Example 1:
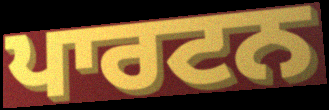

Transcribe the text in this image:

ਪਾਰਟਨ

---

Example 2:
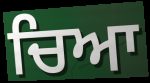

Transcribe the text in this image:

ਚਿਆ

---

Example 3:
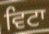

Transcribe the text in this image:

ਵਿਟਾ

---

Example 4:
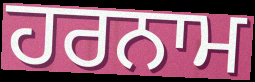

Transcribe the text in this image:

ਹਰਨਾਮ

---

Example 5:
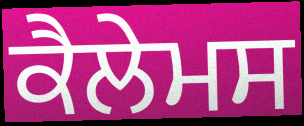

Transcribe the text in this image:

ਕੈਲੇਮਸ